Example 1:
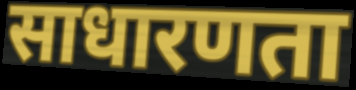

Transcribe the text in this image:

साधारणता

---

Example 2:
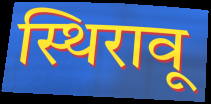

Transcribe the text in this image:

स्थिरावू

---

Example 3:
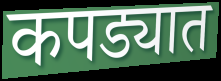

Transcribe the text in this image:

कपड्यात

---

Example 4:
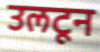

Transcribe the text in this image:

उलटून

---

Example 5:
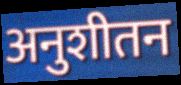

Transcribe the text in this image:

अनुशीतन